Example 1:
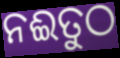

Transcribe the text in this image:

ନଈତୁଠ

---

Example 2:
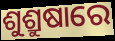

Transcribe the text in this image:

ଶୁଶ୍ରୁଷାରେ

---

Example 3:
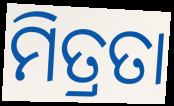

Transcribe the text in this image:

ମିତ୍ରତା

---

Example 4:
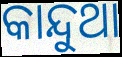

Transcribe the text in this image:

କାନ୍ଦୁଥା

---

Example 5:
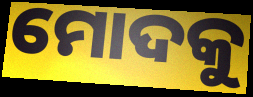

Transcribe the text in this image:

ମୋଦକୁ